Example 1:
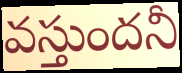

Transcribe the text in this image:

వస్తుందనీ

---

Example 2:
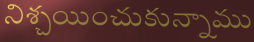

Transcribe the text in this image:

నిశ్చయించుకున్నాము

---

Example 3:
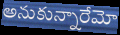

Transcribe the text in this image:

అనుకున్నారేమో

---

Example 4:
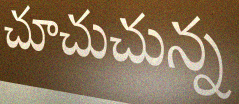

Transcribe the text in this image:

చూచుచున్న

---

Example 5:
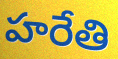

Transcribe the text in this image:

హరేతి